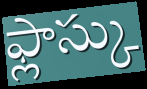
ఫ్లాస్కు